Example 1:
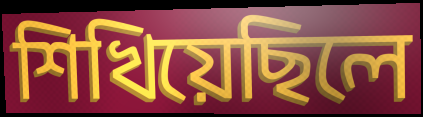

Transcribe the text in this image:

শিখিয়েছিলে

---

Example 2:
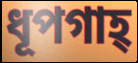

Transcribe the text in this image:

ধূপগাহ্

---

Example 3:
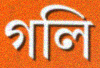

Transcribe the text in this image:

গলি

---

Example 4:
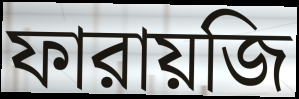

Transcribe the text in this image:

ফারায়জি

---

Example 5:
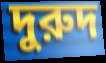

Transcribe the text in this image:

দুরুদ